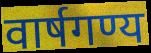
वार्षगण्य